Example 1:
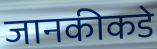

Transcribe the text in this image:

जानकीकडे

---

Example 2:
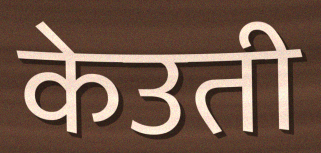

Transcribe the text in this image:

केउती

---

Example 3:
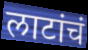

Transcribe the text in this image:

लाटांचं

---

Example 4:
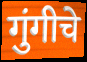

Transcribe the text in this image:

गुंगीचे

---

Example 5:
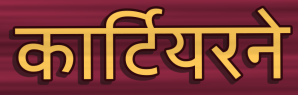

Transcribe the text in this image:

कार्टियरने